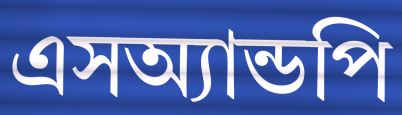
এসঅ্যান্ডপি